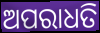
ଅପରାଧତି